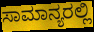
ಸಾಮಾನ್ಯರಲ್ಲಿ